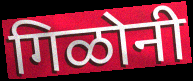
गिळोनी